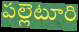
పల్లెటూరి